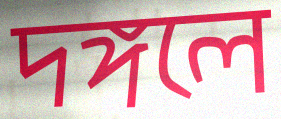
দঙ্গলে